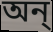
অন্